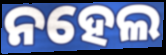
ନହେଲ